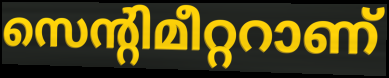
സെന്റിമീറ്ററാണ്